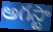
అగస్టా